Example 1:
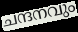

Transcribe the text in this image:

ചന്ദനവും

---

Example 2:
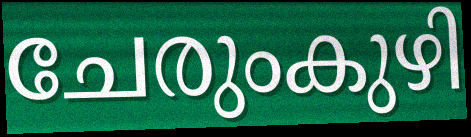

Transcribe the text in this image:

ചേരുംകുഴി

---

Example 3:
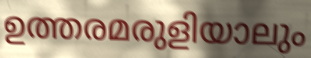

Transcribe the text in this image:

ഉത്തരമരുളിയാലും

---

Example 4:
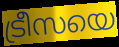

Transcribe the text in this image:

ട്രീസയെ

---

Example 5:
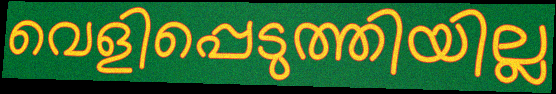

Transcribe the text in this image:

വെളിപ്പെടുത്തിയില്ല